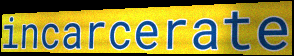
incarcerate